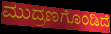
ಮುದ್ರಣಗೊಂಡಿದೆ